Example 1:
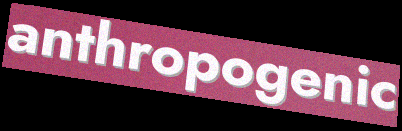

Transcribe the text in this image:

anthropogenic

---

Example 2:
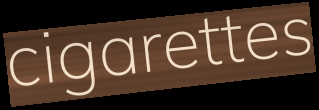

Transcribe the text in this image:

cigarettes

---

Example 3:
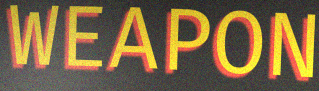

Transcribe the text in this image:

WEAPON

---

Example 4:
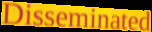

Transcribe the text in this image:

Disseminated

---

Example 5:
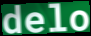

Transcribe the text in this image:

delo